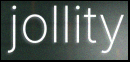
jollity